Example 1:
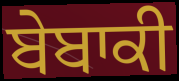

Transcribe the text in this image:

ਬੇਬਾਕੀ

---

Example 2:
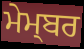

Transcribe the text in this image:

ਮੇਮ੍ਬਰ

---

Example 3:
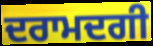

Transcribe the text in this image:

ਦਰਾਮਦਗੀ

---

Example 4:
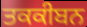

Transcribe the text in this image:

ਤਕਕੀਬਨ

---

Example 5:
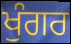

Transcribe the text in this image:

ਖੁੰਗਰ